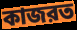
কাজরত